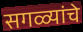
सगळ्यांचे